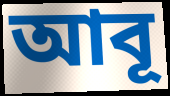
আবূ